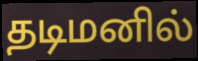
தடிமனில்